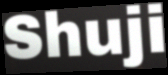
Shuji